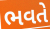
ભવતે